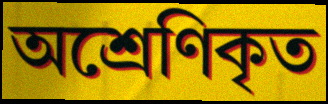
অশ্রেণিকৃত